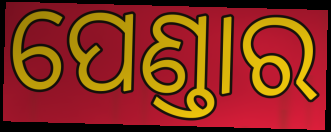
ପେଣ୍ଡାର